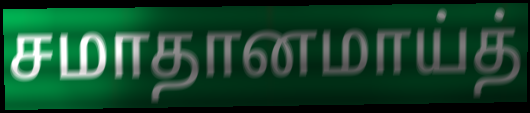
சமாதானமாய்த்